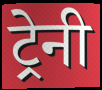
ट्रेनी